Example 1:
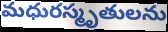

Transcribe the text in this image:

మధురస్మృతులను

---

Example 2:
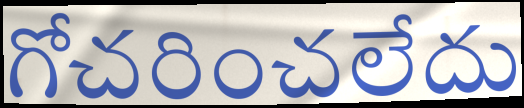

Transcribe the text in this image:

గోచరించలేదు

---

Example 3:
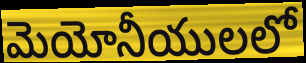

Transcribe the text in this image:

మెయోనీయులలో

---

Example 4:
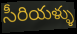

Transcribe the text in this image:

సీరియళ్ళు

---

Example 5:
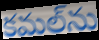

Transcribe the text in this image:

కమల్‌ను